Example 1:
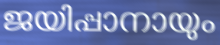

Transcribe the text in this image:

ജയിപ്പാനായും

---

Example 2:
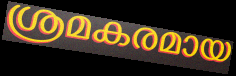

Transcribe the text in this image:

ശ്രമകരമായ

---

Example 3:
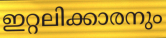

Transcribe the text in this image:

ഇറ്റലിക്കാരനും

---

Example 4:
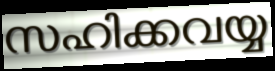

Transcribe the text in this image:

സഹിക്കവയ്യ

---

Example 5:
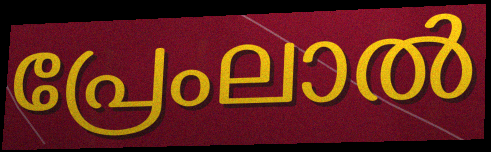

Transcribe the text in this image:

പ്രേംലാൽ